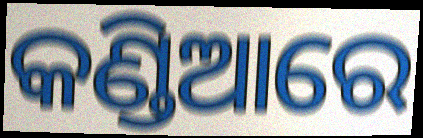
କଣ୍ଡିଆରେ